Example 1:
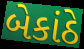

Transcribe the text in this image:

બેકાંઠે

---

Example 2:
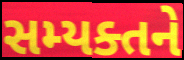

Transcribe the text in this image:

સમ્યક્તને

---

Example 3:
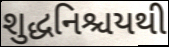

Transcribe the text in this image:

શુદ્ધનિશ્ચયથી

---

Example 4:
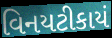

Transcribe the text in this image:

વિનયટીકાયં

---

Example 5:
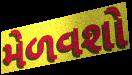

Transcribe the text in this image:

મેળવશો